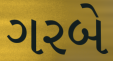
ગરબે